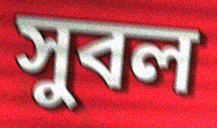
সুবল